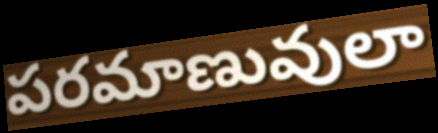
పరమాణువులా